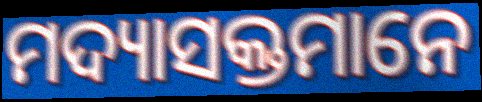
ମଦ୍ୟାସକ୍ତମାନେ